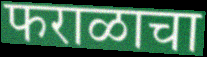
फराळाचा